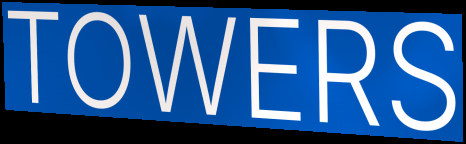
TOWERS